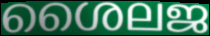
ശൈലജ